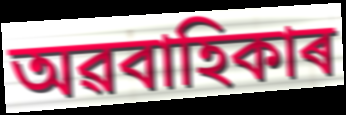
অৱবাহিকাৰ